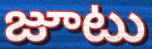
జూటు